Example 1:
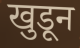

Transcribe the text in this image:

खुडून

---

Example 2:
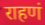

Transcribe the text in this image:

राहणं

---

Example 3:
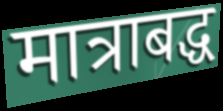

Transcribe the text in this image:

मात्राबद्ध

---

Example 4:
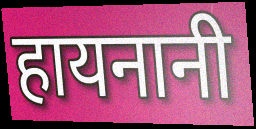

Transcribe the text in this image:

हायनानी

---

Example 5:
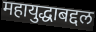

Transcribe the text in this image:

महायुद्धाबद्दल